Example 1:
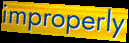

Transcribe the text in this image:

improperly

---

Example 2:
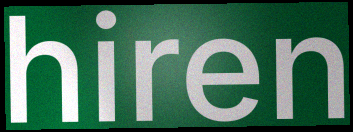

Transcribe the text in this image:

hiren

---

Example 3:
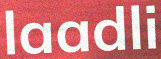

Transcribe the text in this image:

laadli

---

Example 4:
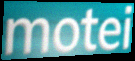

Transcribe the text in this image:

motei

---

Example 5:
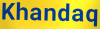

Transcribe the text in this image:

Khandaq